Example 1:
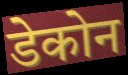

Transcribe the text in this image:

डेकोन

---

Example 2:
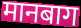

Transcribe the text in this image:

मानबाग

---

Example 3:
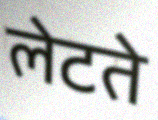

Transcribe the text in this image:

लेटते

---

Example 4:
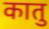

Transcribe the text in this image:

कातु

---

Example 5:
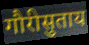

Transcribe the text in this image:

गौरीसुताय